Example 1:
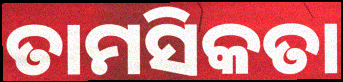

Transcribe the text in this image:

ତାମସିକତା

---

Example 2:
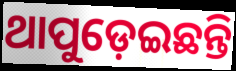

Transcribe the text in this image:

ଥାପୁଡ଼େଇଛନ୍ତି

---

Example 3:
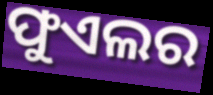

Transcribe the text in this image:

ଫୁଏଲର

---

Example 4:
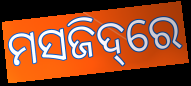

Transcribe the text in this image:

ମସଜିଦ୍‌ରେ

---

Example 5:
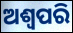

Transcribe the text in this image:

ଅଶ୍ୱପରି